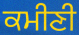
ਕਮੀਣੀ